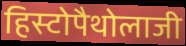
हिस्टोपैथोलाजी